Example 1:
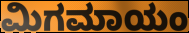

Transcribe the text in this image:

ಮಿಗಮಾಯಂ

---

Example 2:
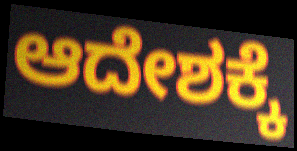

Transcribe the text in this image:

ಆದೇಶಕ್ಕೆ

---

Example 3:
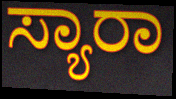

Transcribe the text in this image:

ಸ್ಯಾರಾ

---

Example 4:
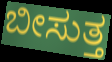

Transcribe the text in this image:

ಬೀಸುತ್ತ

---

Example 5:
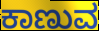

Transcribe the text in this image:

ಕಾಣುವ